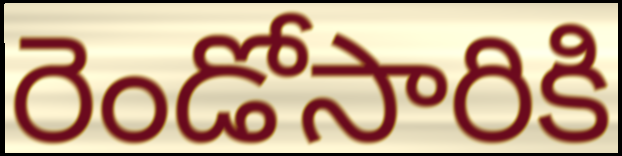
రెండోసారికి